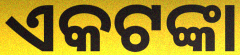
ଏକଟଙ୍କା